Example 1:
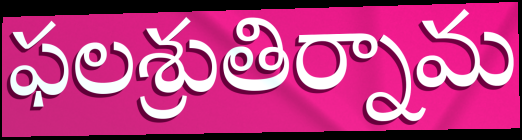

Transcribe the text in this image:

ఫలశ్రుతిర్నామ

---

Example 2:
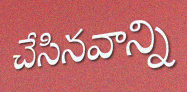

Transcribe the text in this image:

చేసినవాన్ని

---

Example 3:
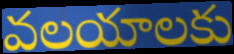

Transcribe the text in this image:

వలయాలకు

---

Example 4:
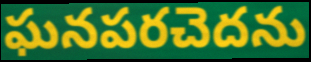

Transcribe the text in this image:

ఘనపరచెదను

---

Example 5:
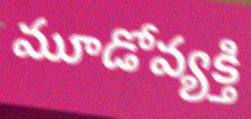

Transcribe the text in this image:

మూడోవ్యక్తి